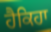
ਹੈਕਿਹਾ